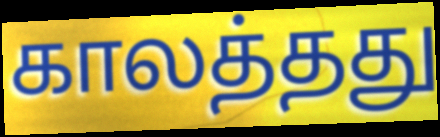
காலத்தது